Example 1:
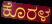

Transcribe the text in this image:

ಕೊರಳ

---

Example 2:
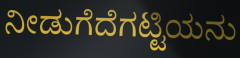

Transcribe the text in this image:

ನೀಡುಗೆದೆಗಟ್ಟಿಯನು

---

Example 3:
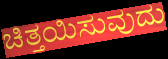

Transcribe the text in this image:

ಚಿತ್ತಯಿಸುವುದು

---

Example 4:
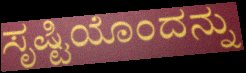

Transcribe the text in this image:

ಸೃಷ್ಟಿಯೊಂದನ್ನು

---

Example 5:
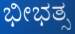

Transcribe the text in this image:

ಭೀಭತ್ಸ